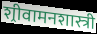
श्रीवामनशास्त्री